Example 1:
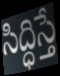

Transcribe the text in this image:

సిద్ధిస్తే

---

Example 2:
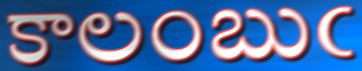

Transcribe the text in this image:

కాలంబుఁ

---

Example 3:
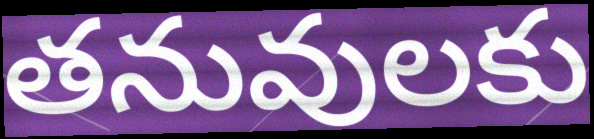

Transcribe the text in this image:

తనువులకు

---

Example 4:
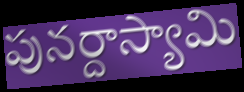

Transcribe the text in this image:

పునర్దాస్యామి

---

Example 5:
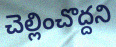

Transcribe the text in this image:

చెల్లించొద్దని